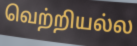
வெற்றியல்ல